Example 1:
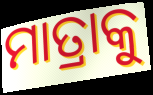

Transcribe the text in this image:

ମାତ୍ରାକୁ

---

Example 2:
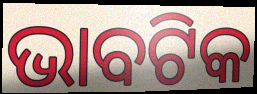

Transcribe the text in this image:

ଭାବଟିକ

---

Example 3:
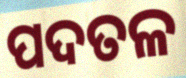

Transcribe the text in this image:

ପଦତଳ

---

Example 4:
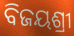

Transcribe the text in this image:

ବିଜୟଶ୍ରୀ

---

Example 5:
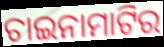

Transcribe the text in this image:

ଚାଇନାମାଟିର